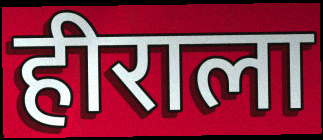
हीराला